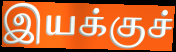
இயக்குச்